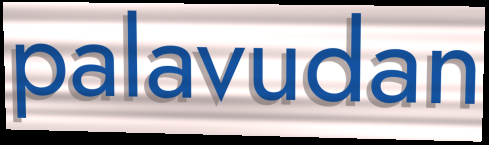
palavudan